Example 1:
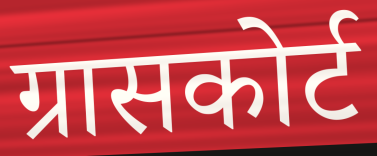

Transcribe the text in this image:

ग्रासकोर्ट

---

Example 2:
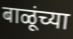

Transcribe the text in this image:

बाळूंच्या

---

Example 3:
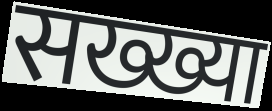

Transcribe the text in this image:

सख्ख्या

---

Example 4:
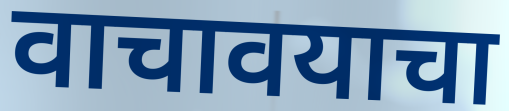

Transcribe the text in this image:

वाचावयाचा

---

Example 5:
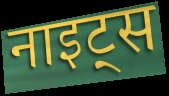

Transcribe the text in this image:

नाइट्‌स